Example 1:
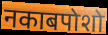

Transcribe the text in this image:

नकाबपोशो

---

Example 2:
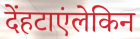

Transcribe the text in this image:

देंहटाएंलेकिन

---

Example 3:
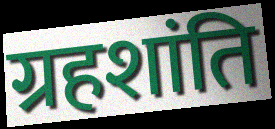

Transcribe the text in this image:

ग्रहशांति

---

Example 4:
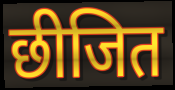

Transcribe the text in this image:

छीजित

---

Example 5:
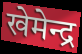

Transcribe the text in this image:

खेमेन्द्र